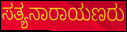
ಸತ್ಯನಾರಾಯಣರು